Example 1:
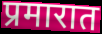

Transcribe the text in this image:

प्रमारात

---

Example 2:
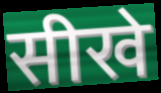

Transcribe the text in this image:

सीखे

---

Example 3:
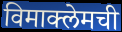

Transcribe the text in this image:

विमाक्लेमची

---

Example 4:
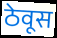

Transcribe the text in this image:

ठेवूस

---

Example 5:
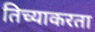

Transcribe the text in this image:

तिच्याकरता